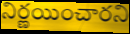
నిర్ణయించారని